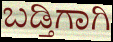
ಬಡ್ತಿಗಾಗಿ